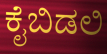
ಕೈಬಿಡಲಿ